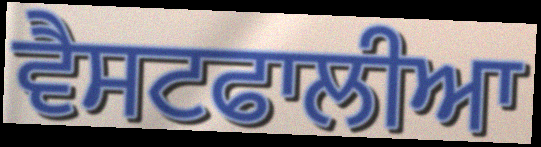
ਵੈਸਟਫਾਲੀਆ